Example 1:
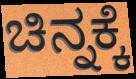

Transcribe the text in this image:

ಚಿನ್ನಕ್ಕೆ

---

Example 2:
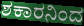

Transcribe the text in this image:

ಶಕಾರನಿಂದ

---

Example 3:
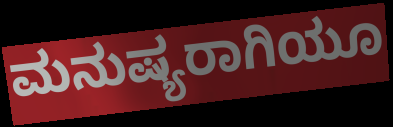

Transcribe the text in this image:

ಮನುಷ್ಯರಾಗಿಯೂ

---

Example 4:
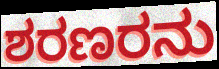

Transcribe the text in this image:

ಶರಣರನು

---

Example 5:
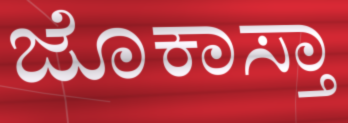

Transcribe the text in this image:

ಜೊಕಾಸ್ತಾ